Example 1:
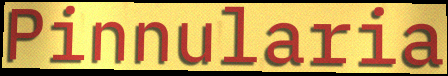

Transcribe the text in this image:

Pinnularia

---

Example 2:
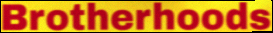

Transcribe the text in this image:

Brotherhoods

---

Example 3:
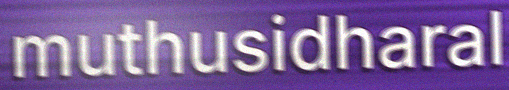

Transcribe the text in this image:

muthusidharal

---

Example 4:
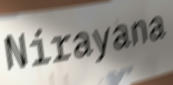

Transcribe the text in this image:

Nirayana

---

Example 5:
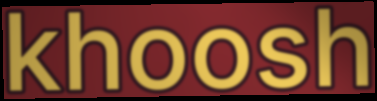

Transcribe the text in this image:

khoosh